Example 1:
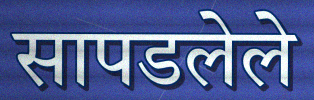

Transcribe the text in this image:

सापडलेले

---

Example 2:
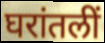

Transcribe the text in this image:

घरांतलीं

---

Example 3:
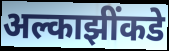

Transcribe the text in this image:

अल्काझींकडे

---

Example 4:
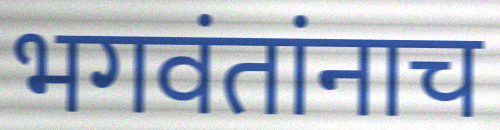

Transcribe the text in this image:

भगवंतांनाच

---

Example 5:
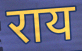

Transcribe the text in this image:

राय